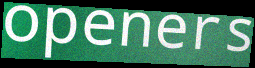
openers